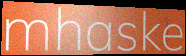
mhaske